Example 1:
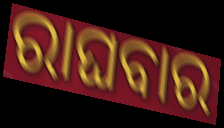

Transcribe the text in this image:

ରାଘବାର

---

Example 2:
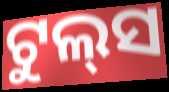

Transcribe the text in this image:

ଟୁଲ୍‌ସ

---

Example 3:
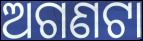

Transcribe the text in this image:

ଅଗଣଟା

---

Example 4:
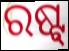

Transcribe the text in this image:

ରଷ୍ଟ୍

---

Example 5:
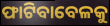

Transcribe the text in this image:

ଫାଟିବାବେଳକୁ